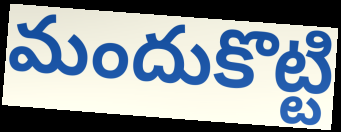
మందుకొట్టి